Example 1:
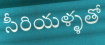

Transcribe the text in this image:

సీరియళ్ళతో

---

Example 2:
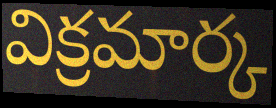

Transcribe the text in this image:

విక్రమార్క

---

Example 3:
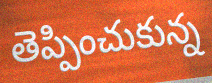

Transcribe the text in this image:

తెప్పించుకున్న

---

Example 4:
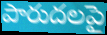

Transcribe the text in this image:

పారుదలపై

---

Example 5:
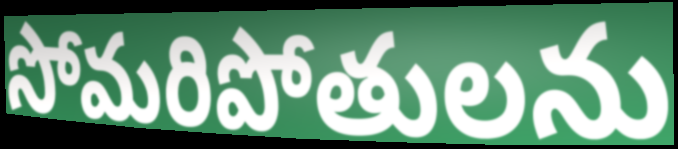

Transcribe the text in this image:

సోమరిపోతులను